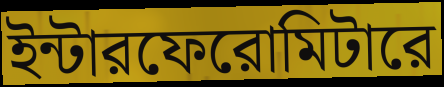
ইন্টারফেরোমিটারে